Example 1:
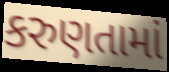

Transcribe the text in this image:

કરુણતામાં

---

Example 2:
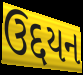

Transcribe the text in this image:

ઉદ્દયન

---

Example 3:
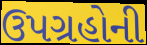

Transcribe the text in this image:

ઉપગ્રહોની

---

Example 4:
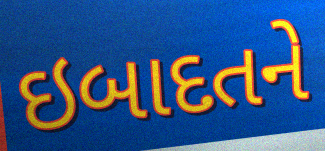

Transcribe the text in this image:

ઇબાદતને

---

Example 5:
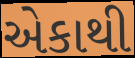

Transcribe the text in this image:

એકાથી